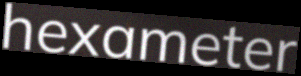
hexameter